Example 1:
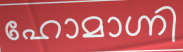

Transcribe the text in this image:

ഹോമാഗ്നി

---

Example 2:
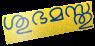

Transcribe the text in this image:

ശുഭമസ്തു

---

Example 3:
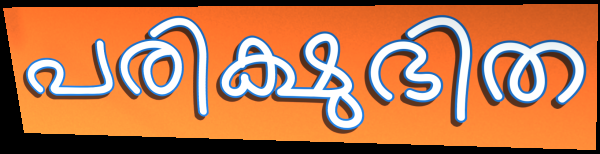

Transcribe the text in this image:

പരിക്ഷുഭിത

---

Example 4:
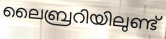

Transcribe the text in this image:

ലൈബ്രറിയിലുണ്ട്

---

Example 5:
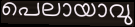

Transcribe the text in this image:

പെലായാവു